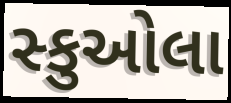
સ્કુઓલા